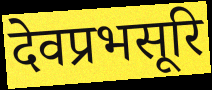
देवप्रभसूरि